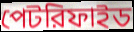
পেটরিফাইড